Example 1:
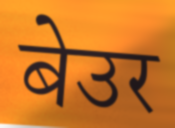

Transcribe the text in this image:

बेउर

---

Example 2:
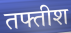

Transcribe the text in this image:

तफ्तीश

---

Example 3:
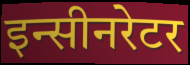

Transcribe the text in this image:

इन्सीनरेटर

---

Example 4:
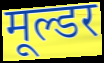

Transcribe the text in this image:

मूल्डर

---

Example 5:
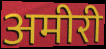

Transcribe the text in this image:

अमीरी